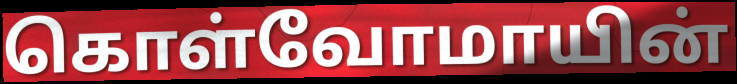
கொள்வோமாயின்